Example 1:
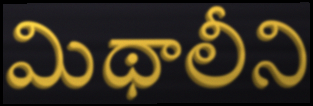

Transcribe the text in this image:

మిథాలీని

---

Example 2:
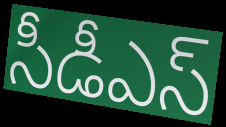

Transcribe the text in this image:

సీడీఎస్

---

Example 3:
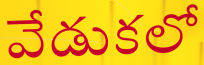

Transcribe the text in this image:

వేడుకలో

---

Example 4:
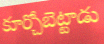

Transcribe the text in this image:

కూర్చోబెట్టాడు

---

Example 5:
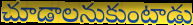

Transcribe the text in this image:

చూడాలనుకుంటాడు